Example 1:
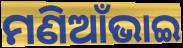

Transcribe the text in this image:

ମଣିଆଁଭାଇ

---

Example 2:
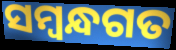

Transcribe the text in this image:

ସମ୍ବନ୍ଧଗତ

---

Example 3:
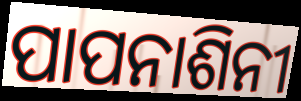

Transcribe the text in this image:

ପାପନାଶିନୀ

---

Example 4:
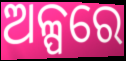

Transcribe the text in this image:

ଅଳ୍ପରେ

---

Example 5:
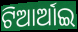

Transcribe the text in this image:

ଟିଆର୍ଆଇ